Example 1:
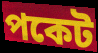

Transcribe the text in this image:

পকেট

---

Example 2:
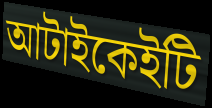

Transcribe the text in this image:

আটাইকেইটি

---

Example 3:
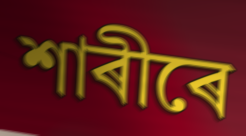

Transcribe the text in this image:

শাৰীৰে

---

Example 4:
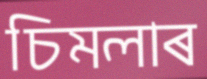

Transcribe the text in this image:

চিমলাৰ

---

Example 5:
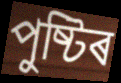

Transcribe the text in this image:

পুষ্টিৰ